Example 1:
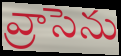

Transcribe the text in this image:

వ్రాసెను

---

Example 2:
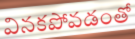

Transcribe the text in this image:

వినకపోవడంతో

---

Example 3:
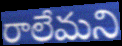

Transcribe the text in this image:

రాలేమని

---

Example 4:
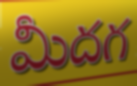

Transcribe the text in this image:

మీదగ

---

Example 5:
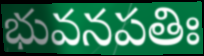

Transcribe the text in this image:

భువనపతిః